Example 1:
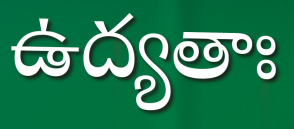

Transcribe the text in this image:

ఉద్యతాః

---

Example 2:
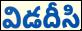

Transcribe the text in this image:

విడదీసి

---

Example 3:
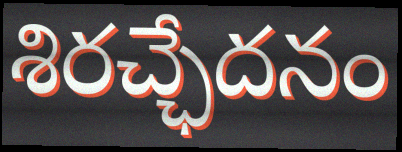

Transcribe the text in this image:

శిరచ్ఛేదనం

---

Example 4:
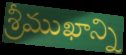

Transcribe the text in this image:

శ్రీముఖాన్ని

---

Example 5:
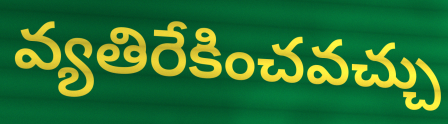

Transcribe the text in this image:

వ్యతిరేకించవచ్చు